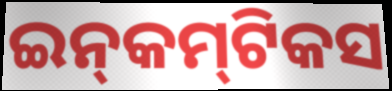
ଇନ୍‍କମ୍‍ଟିକସ